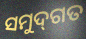
ସମୁଦ୍‌ଗତ